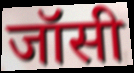
जॉसी